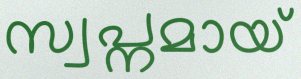
സ്വപ്നമായ്